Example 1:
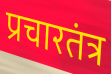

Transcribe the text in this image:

प्रचारतंत्र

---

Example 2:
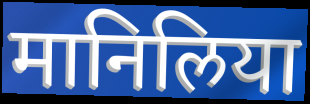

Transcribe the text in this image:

मानिलिया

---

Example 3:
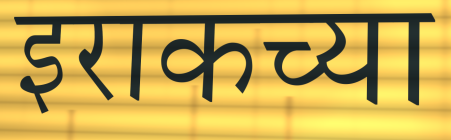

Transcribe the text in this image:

इराकच्या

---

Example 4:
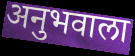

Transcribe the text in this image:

अनुभवाला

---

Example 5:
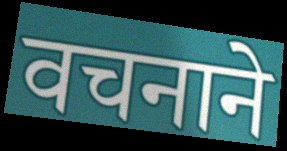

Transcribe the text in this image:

वचनाने